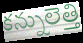
కన్నులెత్తి